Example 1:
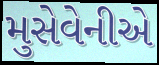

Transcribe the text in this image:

મુસેવેનીએ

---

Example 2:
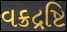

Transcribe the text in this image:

વક્રદ્રષ્ટિ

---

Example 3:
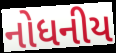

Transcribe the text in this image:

નોધનીય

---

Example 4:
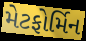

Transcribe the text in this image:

મેટફોર્મિન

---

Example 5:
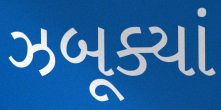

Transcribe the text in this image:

ઝબૂક્યાં